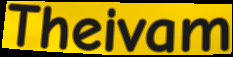
Theivam